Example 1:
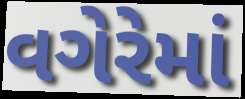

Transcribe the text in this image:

વગેરેમાં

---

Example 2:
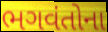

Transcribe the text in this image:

ભગવંતોના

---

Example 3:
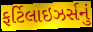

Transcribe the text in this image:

ફર્ટિલાઇઝર્સનું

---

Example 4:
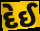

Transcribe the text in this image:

દેઈ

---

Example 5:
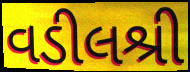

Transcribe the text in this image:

વડીલશ્રી